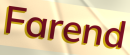
Farend